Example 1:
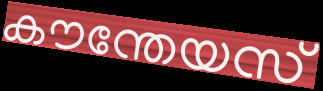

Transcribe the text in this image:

കൗന്തേയസ്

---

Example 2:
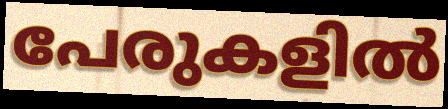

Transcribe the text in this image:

പേരുകളിൽ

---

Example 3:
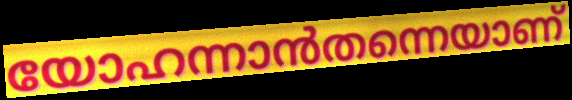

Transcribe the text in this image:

യോഹന്നാൻതന്നെയാണ്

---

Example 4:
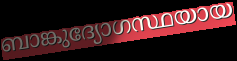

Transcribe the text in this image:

ബാങ്കുദ്യോഗസ്ഥയായ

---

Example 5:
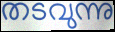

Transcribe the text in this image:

തടവുന്നു